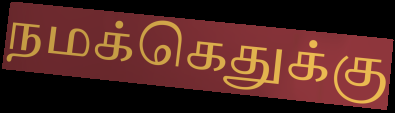
நமக்கெதுக்கு